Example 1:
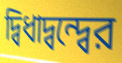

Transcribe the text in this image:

দ্বিধাদ্বন্দ্বের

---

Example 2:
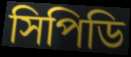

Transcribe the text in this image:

সিপিডি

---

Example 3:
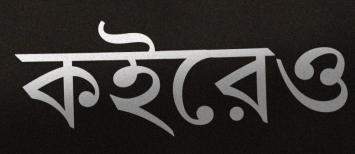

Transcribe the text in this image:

কইরেও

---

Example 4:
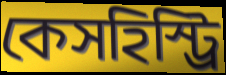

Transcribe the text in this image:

কেসহিস্ট্রি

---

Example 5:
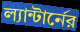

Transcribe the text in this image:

ল্যান্টার্নের